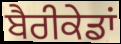
ਬੈਰੀਕੇਡਾਂ